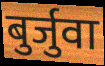
बुर्जुवा